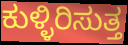
ಕುಳ್ಳಿರಿಸುತ್ತ